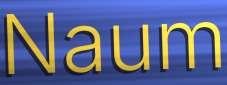
Naum